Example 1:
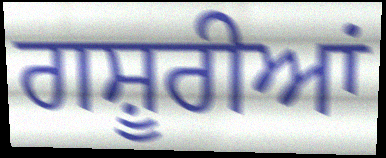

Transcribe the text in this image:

ਗਸ਼ੂਰੀਆਂ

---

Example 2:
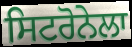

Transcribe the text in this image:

ਸਿਟਰੋਨੇਲਾ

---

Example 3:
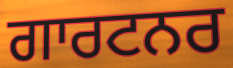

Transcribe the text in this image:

ਗਾਰਟਨਰ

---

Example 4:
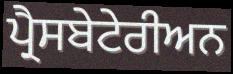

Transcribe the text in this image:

ਪ੍ਰੈਸਬੇਟੇਰੀਅਨ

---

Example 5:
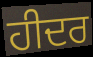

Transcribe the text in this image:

ਹੀਦਰ